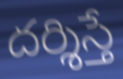
దర్శిస్తే